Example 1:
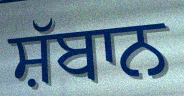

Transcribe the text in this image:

ਸ਼ੱਬਾਨ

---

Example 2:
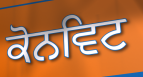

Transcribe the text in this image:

ਕੋਨਵਿਟ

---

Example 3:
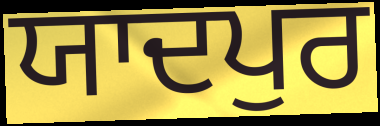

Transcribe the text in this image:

ਯਾਦਪੁਰ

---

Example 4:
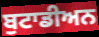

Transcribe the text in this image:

ਬੁਟਾਡੀਅਨ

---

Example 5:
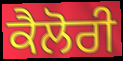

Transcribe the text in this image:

ਕੈਲੋਰੀ